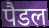
पैडल